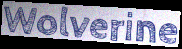
Wolverine